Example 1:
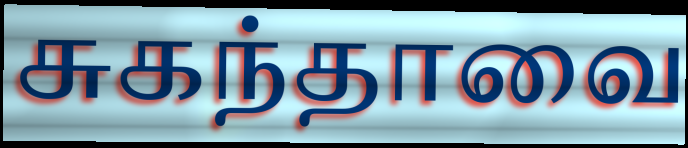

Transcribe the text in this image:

சுகந்தாவை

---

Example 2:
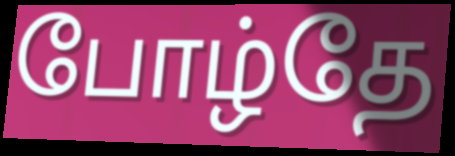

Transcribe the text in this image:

போழ்தே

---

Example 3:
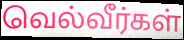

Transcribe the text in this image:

வெல்வீர்கள்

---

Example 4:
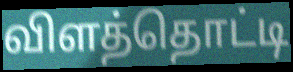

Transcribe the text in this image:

விளத்தொட்டி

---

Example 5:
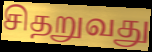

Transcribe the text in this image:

சிதறுவது